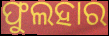
ଫୁଲହାର